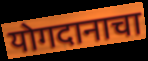
योगदानाचा